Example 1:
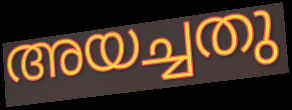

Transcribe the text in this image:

അയച്ചതു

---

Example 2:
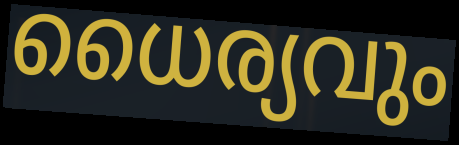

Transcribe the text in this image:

ധൈര്യവും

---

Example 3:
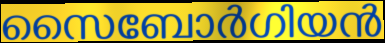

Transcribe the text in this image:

സൈബോർഗിയൻ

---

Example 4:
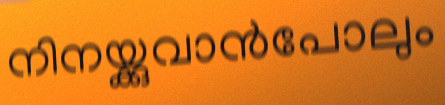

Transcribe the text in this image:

നിനയ്ക്കുവാൻപോലും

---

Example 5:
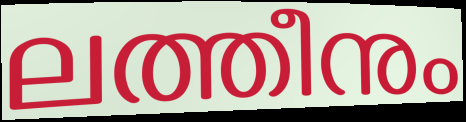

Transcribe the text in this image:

ലത്തീനും